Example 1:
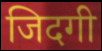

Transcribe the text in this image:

जिदगी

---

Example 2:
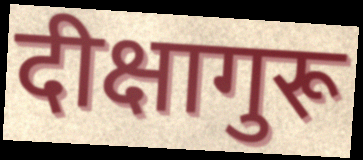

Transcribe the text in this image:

दीक्षागुरू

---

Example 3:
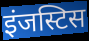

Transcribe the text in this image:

इंजस्टिस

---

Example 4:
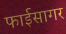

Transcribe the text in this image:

फाईसागर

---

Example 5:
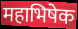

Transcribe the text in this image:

महाभिषेक